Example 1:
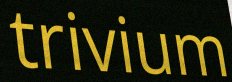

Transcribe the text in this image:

trivium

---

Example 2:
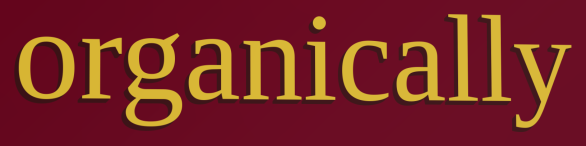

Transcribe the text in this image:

organically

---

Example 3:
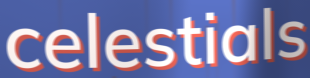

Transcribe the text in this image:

celestials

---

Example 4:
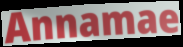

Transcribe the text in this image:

Annamae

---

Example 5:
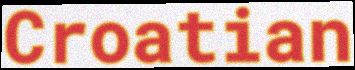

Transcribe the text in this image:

Croatian